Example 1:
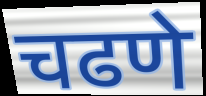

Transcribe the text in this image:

चढणे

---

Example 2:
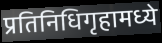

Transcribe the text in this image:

प्रतिनिधिगृहामध्ये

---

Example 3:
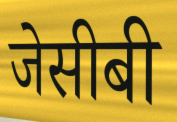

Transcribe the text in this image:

जेसीबी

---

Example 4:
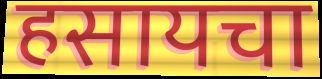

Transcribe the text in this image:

हसायचा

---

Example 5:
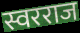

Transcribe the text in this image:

स्वरराज